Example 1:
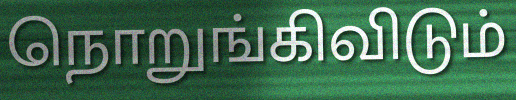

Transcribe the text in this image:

நொறுங்கிவிடும்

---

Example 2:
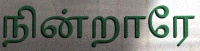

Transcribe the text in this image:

நின்றாரே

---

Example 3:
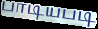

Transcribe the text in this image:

பாடியபடி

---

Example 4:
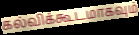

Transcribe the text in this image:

கல்விக்கூடமாகவும்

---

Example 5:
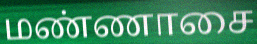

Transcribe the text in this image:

மண்ணாசை